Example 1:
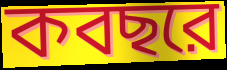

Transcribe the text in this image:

কবছরে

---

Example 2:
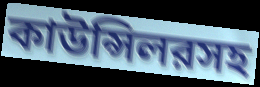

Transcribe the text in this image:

কাউন্সিলরসহ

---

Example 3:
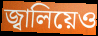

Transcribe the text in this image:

জ্বালিয়েও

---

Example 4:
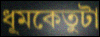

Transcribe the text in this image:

ধূমকেতুটা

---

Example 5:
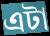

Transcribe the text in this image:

এটা